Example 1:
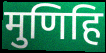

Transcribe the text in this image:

मुणिहि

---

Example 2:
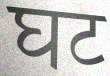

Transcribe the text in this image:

घट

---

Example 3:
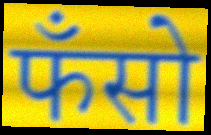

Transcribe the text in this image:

फँसो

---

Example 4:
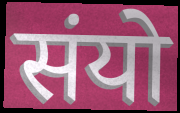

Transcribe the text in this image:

संयो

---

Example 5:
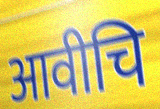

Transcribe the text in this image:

आवीचि